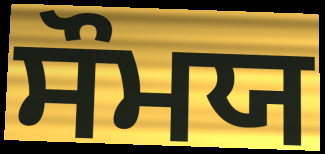
ਸੌਮਯ